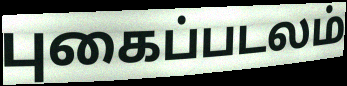
புகைப்படலம்